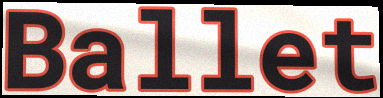
Ballet